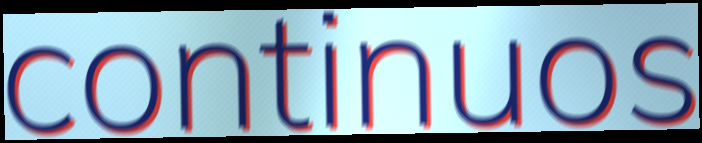
continuos